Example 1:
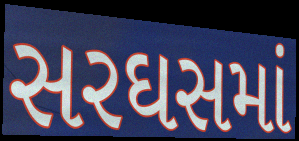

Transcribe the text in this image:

સરઘસમાં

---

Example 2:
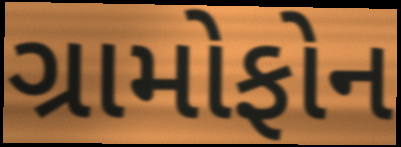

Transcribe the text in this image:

ગ્રામોફોન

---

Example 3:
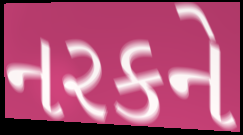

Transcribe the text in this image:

નરકને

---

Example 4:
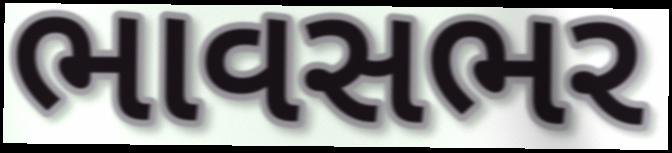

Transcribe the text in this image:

ભાવસભર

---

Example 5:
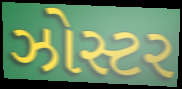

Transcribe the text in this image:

ઝોસ્ટર